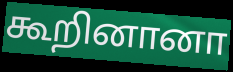
கூறினானா